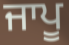
ਜਾਪੂ